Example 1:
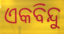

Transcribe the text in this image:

ଏକବିନ୍ଦୁ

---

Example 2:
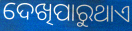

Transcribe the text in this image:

ଦେଖିପାରୁଥାଏ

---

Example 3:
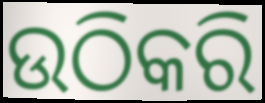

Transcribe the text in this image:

ଉଠିକରି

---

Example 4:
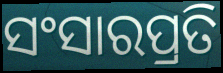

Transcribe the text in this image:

ସଂସାରପ୍ରତି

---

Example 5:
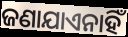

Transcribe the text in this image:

ଜଣାଯାଏନାହିଁ